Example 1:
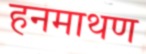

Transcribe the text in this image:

हनमाथण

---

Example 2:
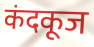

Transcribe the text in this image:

कंदकूज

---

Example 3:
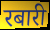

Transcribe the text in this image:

रबारी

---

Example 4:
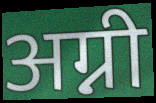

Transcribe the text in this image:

अग्नी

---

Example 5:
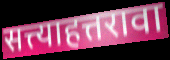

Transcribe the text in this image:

सत्त्याहत्तरावा